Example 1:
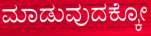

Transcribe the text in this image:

ಮಾಡುವುದಕ್ಕೋ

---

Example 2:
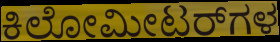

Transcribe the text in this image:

ಕಿಲೋಮೀಟರ್‌ಗಳ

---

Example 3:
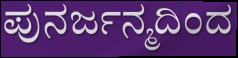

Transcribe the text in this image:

ಪುನರ್ಜನ್ಮದಿಂದ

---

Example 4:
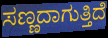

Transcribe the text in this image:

ಸಣ್ಣದಾಗುತ್ತಿದೆ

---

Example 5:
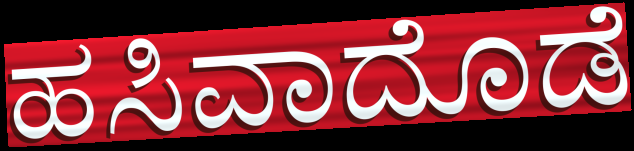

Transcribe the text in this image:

ಹಸಿವಾದೊಡೆ